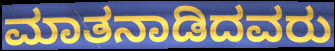
ಮಾತನಾಡಿದವರು